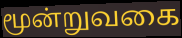
மூன்றுவகை